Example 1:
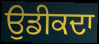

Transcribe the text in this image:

ਉਡੀਕਦਾ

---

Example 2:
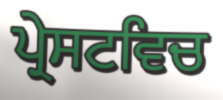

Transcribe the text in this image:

ਪ੍ਰੇਸਟਵਿਚ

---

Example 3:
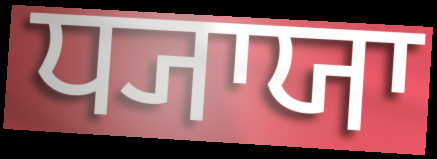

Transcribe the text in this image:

ਧ੍ਯਾਯਾ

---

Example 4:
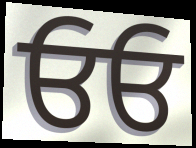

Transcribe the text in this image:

ਓਓ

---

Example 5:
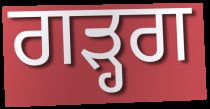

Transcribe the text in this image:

ਗੜ੍ਹਗ